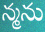
న్మను